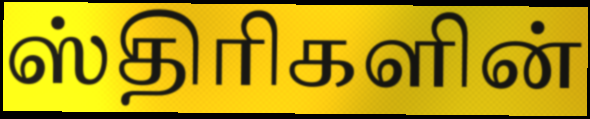
ஸ்திரிகளின்